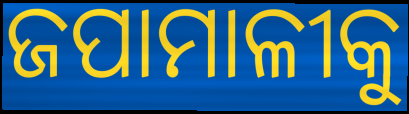
ଜପାମାଳୀକୁ